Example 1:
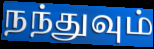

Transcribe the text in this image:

நந்துவும்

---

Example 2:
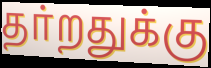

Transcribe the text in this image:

தர்றதுக்கு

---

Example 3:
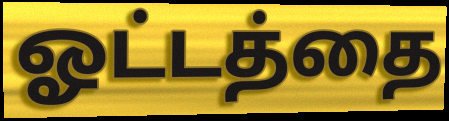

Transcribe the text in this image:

ஓட்டத்தை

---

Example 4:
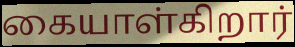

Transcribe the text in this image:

கையாள்கிறார்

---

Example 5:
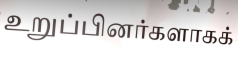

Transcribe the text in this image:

உறுப்பினர்களாகக்